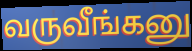
வருவீங்கனு